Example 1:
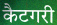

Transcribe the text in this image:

कैटगरी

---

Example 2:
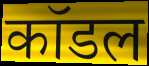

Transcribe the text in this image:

कॉडल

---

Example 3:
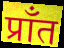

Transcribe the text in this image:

प्राँत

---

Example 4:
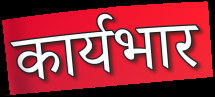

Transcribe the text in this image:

कार्यभार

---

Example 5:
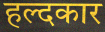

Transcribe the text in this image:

हल्दकार